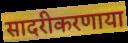
सादरीकरणाया